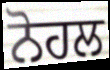
ਨੋਹਲ